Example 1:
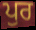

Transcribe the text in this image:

ਪੁਰ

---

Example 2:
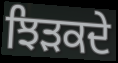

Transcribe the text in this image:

ਝਿੜਕਦੇ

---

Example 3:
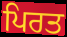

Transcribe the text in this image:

ਪਿਰਤ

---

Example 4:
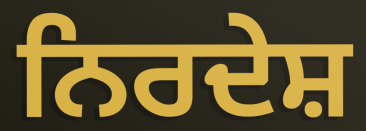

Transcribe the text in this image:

ਨਿਰਦੇਸ਼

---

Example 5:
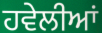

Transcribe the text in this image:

ਹਵੇਲੀਆਂ